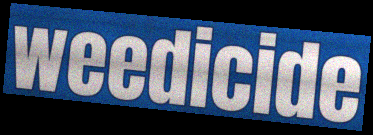
weedicide